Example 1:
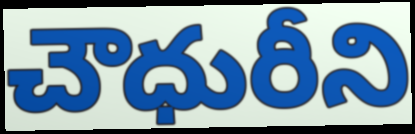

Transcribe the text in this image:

చౌధురీని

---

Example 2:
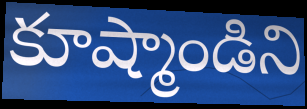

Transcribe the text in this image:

కూష్మాండిని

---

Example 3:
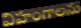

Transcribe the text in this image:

విహంగాలను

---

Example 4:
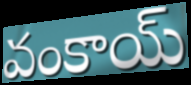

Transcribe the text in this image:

వంకాయ్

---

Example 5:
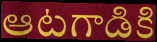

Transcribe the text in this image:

ఆటగాడికి